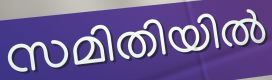
സമിതിയിൽ